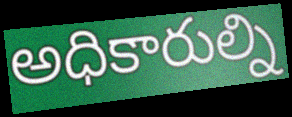
అధికారుల్ని